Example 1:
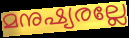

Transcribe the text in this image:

മനുഷ്യരല്ലേ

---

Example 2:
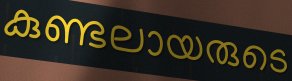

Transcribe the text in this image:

കുണ്ടലായരുടെ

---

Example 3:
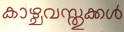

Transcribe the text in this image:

കാഴ്ചവസ്തുക്കൾ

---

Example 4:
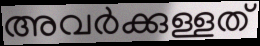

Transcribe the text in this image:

അവർക്കുള്ളത്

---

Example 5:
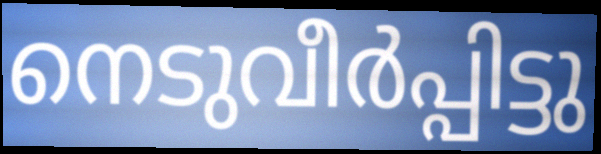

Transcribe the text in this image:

നെടുവീർപ്പിട്ടു